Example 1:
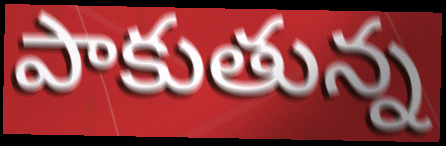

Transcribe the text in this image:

పాకుతున్న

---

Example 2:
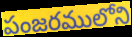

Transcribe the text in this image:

పంజరములోని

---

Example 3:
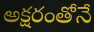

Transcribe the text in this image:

అక్షరంతోనే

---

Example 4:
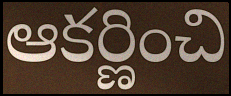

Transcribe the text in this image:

ఆకర్ణించి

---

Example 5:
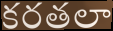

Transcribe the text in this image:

కరతలా